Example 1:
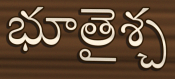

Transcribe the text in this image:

భూతైశ్చ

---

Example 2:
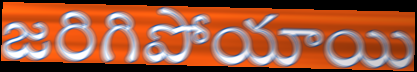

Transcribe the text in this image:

జరిగిపోయాయి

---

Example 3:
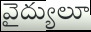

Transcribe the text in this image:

వైద్యులూ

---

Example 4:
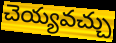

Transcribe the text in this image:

చెయ్యవచ్చు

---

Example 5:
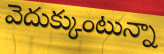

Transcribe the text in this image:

వెదుక్కుంటున్నా